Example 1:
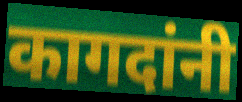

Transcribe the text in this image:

कागदांनी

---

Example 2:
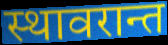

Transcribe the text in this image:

स्थावरान्त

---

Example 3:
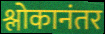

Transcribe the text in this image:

श्लोकानंतर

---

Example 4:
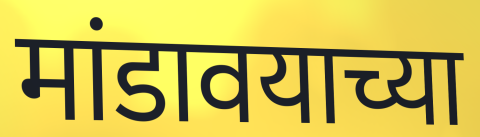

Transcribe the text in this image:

मांडावयाच्या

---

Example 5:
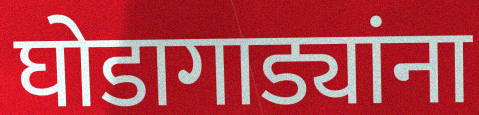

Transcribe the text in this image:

घोडागाड्यांना